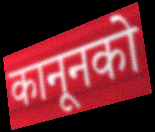
कानूनको